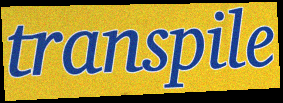
transpile